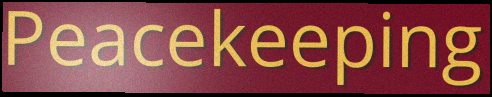
Peacekeeping